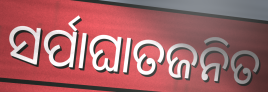
ସର୍ପାଘାତଜନିତ